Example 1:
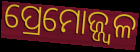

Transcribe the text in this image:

ପ୍ରେମୋଜ୍ଜ୍ୱଳ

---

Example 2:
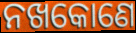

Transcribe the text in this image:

ନଖକୋଣେ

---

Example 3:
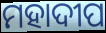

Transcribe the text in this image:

ମହାଦୀପ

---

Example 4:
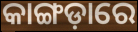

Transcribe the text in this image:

କାଙ୍ଗଡ଼ାରେ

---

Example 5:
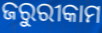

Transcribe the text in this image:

ଜରୁରୀକାମ